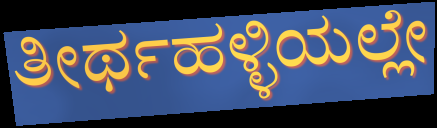
ತೀರ್ಥಹಳ್ಳಿಯಲ್ಲೇ